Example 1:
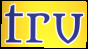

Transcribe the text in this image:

tru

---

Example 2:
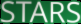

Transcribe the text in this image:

STARS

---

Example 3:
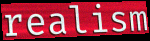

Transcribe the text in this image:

realism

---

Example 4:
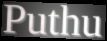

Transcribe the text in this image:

Puthu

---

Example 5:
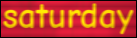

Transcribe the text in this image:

saturday